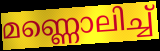
മണ്ണൊലിച്ച്